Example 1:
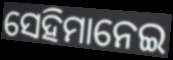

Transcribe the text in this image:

ସେହିମାନେଇ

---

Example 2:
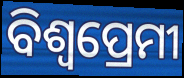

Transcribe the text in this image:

ବିଶ୍ଵପ୍ରେମୀ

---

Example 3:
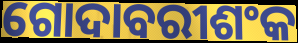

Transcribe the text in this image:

ଗୋଦାବରୀଶଂକ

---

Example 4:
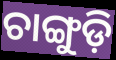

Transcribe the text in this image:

ଚାଙ୍ଗୁଡ଼ି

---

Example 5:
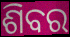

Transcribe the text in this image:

ଶିବର